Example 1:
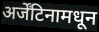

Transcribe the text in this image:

अर्जेंटिनामधून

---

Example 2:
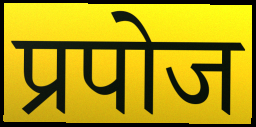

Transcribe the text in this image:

प्रपोज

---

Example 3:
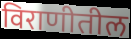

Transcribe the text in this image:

विराणीतील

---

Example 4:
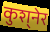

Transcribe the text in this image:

कुश्नेर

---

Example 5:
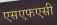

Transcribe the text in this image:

एसएफएसी